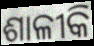
ଶାଳୀକି